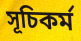
সূচিকৰ্ম